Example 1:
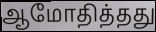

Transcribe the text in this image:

ஆமோதித்தது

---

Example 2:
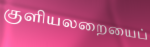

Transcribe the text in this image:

குளியலறையைப்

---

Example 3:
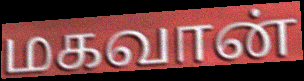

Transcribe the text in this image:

மகவான்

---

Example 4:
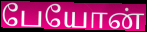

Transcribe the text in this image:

பேயோன்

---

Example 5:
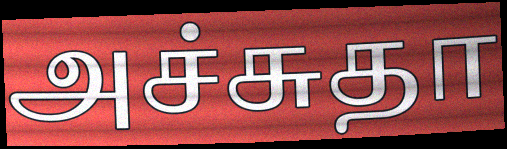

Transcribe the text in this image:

அச்சுதா